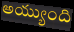
అయ్యుంది